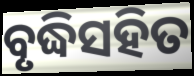
ବୃଦ୍ଧିସହିତ